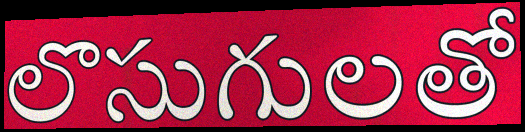
లొసుగులతో